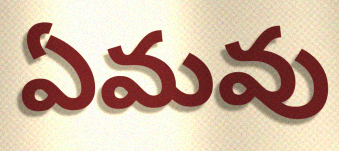
ఏమవు